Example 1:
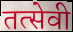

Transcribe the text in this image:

तत्सेवी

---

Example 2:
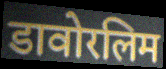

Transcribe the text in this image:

डावोरलिम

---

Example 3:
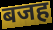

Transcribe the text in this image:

बजह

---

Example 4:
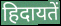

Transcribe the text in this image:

हिदायतें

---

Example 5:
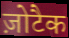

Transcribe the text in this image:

ज़ोटैक